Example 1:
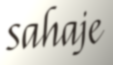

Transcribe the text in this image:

sahaje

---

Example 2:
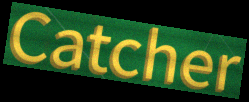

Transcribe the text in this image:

Catcher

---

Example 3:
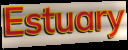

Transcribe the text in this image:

Estuary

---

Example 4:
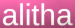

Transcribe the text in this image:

alitha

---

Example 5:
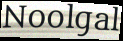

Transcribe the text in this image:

Noolgal